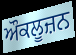
ਔਕਲੂਜ਼ਨ